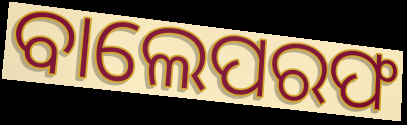
ବାଲେପରଫ